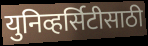
युनिव्हर्सिटीसाठी